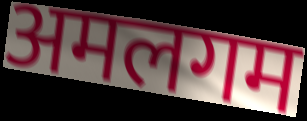
अमलगम